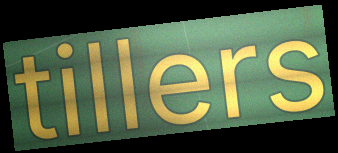
tillers